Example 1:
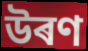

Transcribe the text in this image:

উৰণ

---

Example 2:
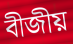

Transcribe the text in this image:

বীজীয়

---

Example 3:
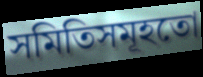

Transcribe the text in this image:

সমিতিসমূহতো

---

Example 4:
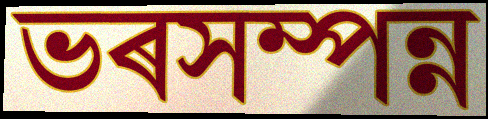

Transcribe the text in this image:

ভৰসম্পন্ন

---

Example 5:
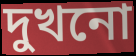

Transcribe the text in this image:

দুখনো